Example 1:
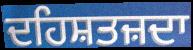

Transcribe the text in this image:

ਦਹਿਸ਼ਤਜ਼ਦਾ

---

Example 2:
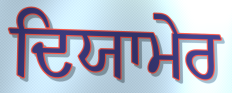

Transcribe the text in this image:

ਦਿਯਾਮੇਰ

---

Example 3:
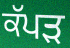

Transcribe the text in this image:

ਕੱਪੜ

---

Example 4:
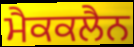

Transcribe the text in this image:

ਮੈਕਕਲੈਨ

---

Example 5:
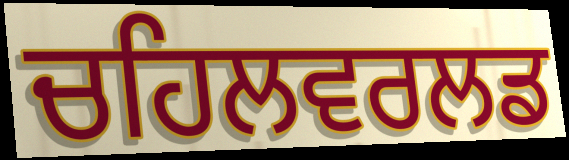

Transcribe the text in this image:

ਚਹਿਲਵਰਲਡ